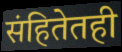
संहितेतही